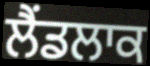
ਲੈਂਡਲਾਕ